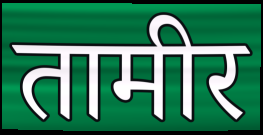
तामीर